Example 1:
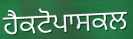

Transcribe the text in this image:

ਹੈਕਟੋਪਾਸਕਲ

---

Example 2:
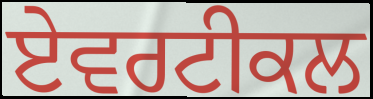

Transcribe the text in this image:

ਏਵਰਟੀਕਲ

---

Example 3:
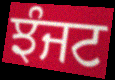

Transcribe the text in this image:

ਝੰਜਟ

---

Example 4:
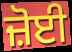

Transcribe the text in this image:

ਜ਼ੋਈ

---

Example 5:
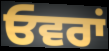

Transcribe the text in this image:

ਓਵਰਾਂ